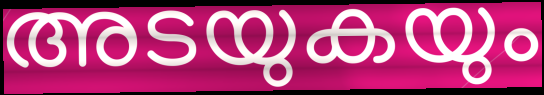
അടയുകയും